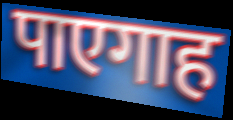
पाएगाह